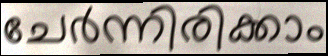
ചേർന്നിരിക്കാം